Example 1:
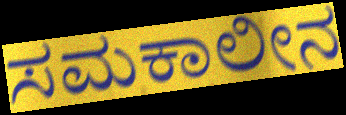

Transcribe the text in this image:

ಸಮಕಾಲೀನ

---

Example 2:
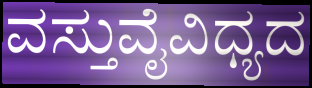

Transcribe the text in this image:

ವಸ್ತುವೈವಿಧ್ಯದ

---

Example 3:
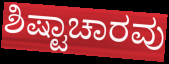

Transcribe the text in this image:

ಶಿಷ್ಟಾಚಾರವು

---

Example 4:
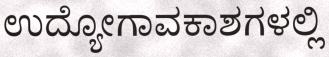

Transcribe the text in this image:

ಉದ್ಯೋಗಾವಕಾಶಗಳಲ್ಲಿ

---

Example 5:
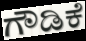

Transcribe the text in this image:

ಗೌಡಿಕೆ